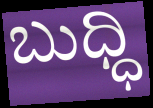
ಬುಧ್ಧಿ